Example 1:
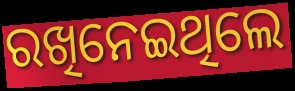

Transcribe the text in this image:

ରଖିନେଇଥିଲେ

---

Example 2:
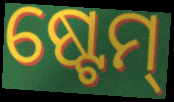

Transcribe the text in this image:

ଷ୍ଟେମ୍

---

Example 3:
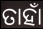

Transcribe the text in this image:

ତାହାଁ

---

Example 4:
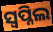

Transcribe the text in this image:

ସ୍ୱପ୍ନିଲ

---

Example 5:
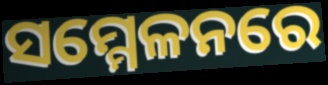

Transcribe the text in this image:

ସମ୍ମେଳନରେ